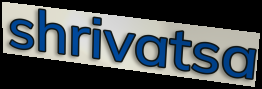
shrivatsa